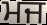
ਮਜ